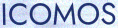
ICOMOS